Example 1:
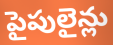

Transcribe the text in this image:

పైపులైన్లు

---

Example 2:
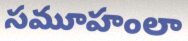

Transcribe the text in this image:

సమూహంలా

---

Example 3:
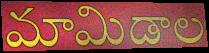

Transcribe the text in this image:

మామిడాల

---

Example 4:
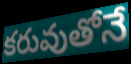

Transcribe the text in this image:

కరువుతోనే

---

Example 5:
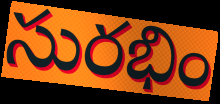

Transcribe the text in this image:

సురభిం